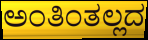
ಅಂತಿಂತಲ್ಲದ